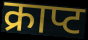
क्राप्ट